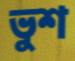
ভুশ